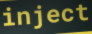
inject